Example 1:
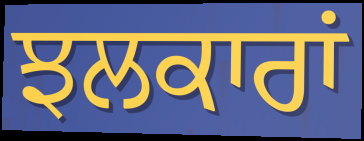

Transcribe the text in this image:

ਝਲਕਾਰਾਂ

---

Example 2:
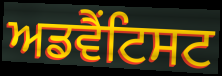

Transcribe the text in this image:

ਅਡਵੈਂਟਿਸਟ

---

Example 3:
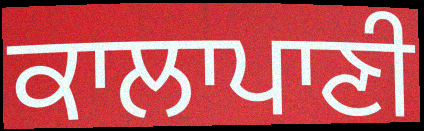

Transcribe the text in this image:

ਕਾਲਾਪਾਣੀ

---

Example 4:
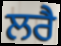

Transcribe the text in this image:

ਲਰੈ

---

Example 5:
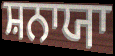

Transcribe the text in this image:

ਸ਼ਨਾਯਾ